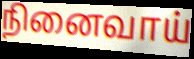
நினைவாய்